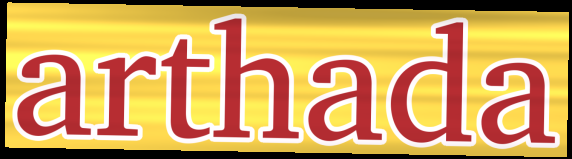
arthada